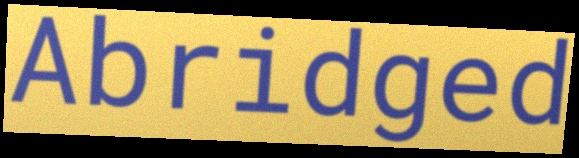
Abridged